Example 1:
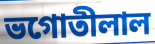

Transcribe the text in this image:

ভগোতীলাল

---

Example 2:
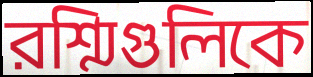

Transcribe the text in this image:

রশ্মিগুলিকে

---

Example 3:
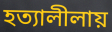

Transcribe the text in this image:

হত্যালীলায়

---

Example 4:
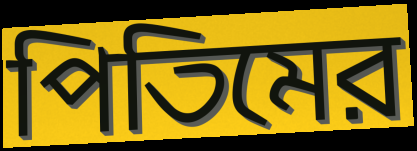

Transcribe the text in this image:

পিতিমের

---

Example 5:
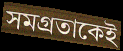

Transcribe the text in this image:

সমগ্রতাকেই